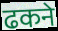
ढकने